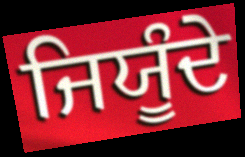
ਜਿਯੂੰਦੇ